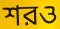
শরও